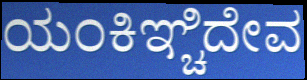
ಯಂಕಿಞ್ಚಿದೇವ